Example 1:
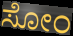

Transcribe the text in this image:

ಸೋಂ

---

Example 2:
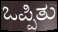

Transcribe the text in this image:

ಒಪ್ಪಿತು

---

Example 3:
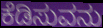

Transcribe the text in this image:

ಕೆಡಿಸುವನು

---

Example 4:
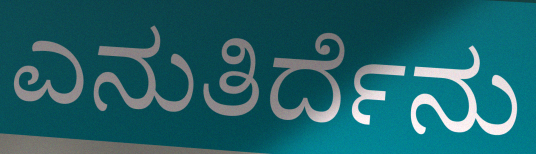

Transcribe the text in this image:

ಎನುತಿರ್ದೆನು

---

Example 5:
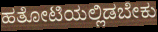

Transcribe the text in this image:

ಹತೋಟಿಯಲ್ಲಿಡಬೇಕು